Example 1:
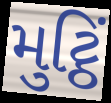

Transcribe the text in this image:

મુટ્ઠિં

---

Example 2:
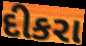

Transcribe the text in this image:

દીકરા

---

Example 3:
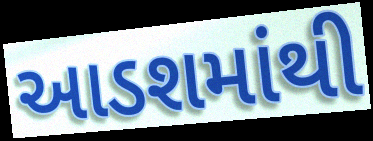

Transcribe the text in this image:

આડશમાંથી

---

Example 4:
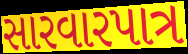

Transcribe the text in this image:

સારવારપાત્ર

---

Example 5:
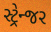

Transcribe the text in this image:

સ્ટ્રેન્જર